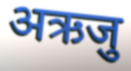
अऋजु